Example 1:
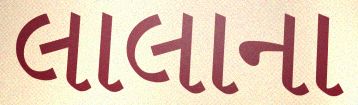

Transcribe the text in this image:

લાલાના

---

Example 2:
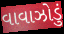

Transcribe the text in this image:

વાવાઝોડું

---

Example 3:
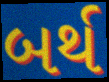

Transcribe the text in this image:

બર્થ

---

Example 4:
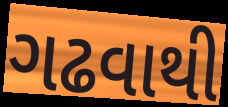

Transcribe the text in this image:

ગઢવાથી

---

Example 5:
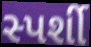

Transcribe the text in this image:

સ્પર્શી